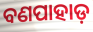
ବଣପାହାଡ଼